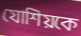
যোশিয়কে